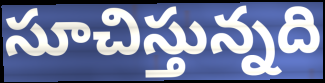
సూచిస్తున్నది